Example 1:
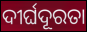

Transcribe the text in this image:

ଦୀର୍ଘଦୂରତା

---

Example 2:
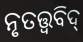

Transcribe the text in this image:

ନୃତତ୍ତ୍ଵବିଦ୍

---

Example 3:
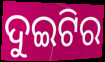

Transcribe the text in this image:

ଦୁଇଟିର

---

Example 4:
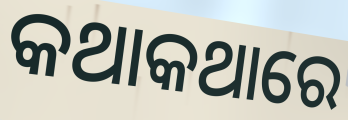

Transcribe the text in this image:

କଥାକଥାରେ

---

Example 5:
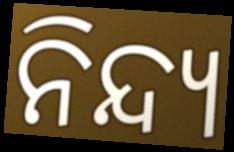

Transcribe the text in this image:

ନିନ୍ଦ୍ୟ